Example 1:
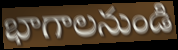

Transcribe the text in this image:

భాగాలనుండి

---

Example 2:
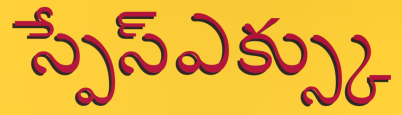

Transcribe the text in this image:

స్పేస్ఎక్స్కు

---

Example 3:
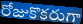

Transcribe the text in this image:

రోజుకొకరుగా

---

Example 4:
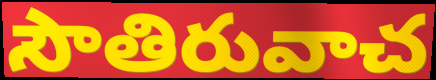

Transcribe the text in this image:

సౌతిరువాచ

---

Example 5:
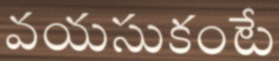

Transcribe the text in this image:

వయసుకంటే